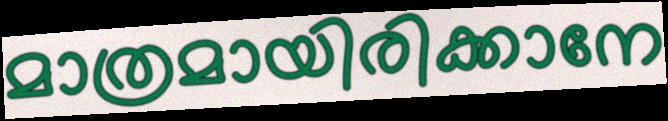
മാത്രമായിരിക്കാനേ